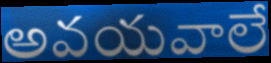
అవయవాలే